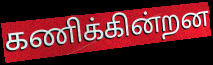
கணிக்கின்றன